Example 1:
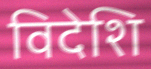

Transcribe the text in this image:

विदेशि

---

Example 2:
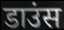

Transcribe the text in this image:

डाउंस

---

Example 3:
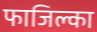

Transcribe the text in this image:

फाजिल्का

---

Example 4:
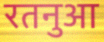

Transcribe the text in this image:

रतनुआ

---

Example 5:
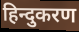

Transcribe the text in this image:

हिन्दुकरण